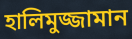
হালিমুজ্জামান